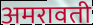
अमरावती